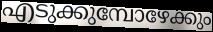
എടുക്കുമ്പോഴേക്കും